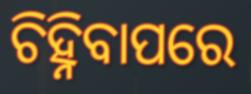
ଚିହ୍ନିବାପରେ